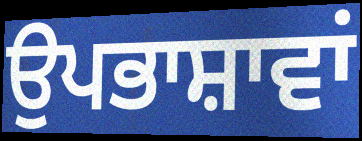
ਉਪਭਾਸ਼ਾਵਾਂ